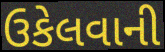
ઉકેલવાની